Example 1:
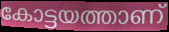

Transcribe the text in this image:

കോട്ടയത്താണ്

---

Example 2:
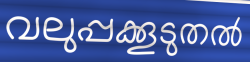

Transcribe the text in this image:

വലുപ്പക്കൂടുതൽ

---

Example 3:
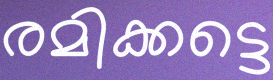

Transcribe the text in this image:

രമിക്കട്ടെ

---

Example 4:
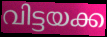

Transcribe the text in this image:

വിട്ടയക്ക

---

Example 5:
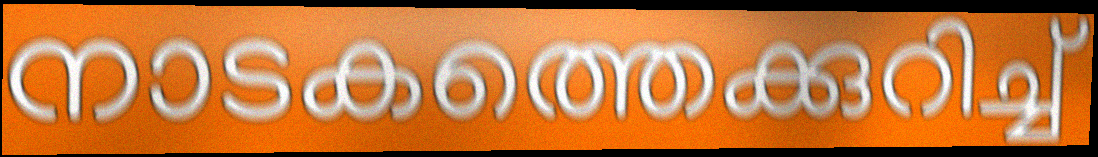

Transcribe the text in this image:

നാടകത്തെക്കുറിച്ച്